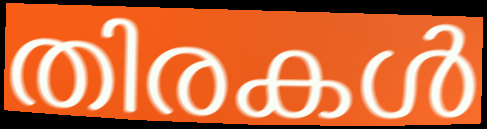
തിരകൾ